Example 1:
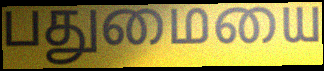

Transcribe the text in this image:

பதுமையை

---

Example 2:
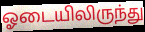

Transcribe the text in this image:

ஓடையிலிருந்து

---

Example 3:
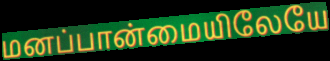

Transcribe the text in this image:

மனப்பான்மையிலேயே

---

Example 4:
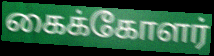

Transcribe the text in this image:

கைக்கோளர்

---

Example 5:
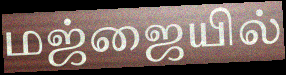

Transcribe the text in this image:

மஜ்ஜையில்